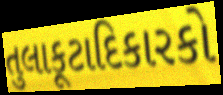
તુલાકૂટાદિકારકો